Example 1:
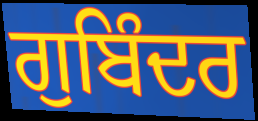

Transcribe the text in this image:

ਗੁਬਿੰਦਰ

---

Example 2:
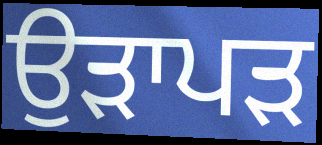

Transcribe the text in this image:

ਉੜਾਪੜ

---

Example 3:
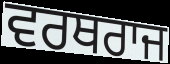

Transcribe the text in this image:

ਵਰਥਰਾਜ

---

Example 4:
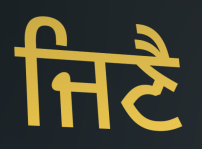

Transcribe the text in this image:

ਜਿਣੈ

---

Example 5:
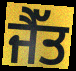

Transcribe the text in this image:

ਜੈੱਤ